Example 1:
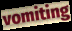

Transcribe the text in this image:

vomiting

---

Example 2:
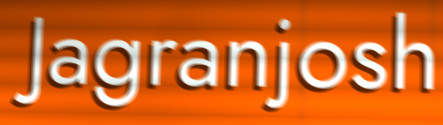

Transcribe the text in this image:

Jagranjosh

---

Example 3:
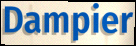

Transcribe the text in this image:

Dampier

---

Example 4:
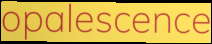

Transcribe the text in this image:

opalescence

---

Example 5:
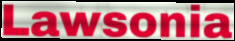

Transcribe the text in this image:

Lawsonia